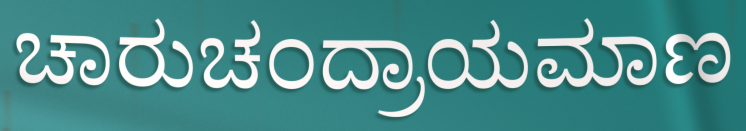
ಚಾರುಚಂದ್ರಾಯಮಾಣ